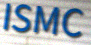
ISMC